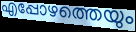
എപ്പോഴത്തെയും